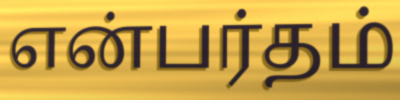
என்பர்தம்